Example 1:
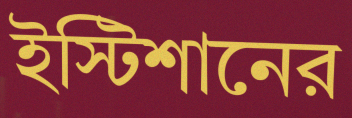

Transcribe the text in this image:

ইস্টিশানের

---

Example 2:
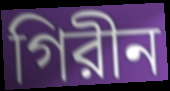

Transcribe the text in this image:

গিরীন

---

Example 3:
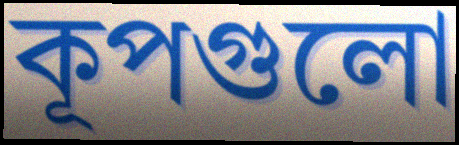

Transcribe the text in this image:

কূপগুলো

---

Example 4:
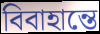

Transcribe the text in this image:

বিবাহান্তে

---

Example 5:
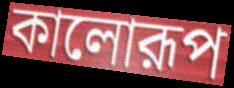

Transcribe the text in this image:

কালোরূপ